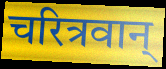
चरित्रवान्